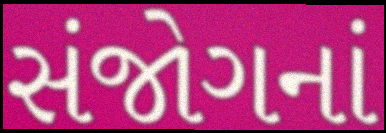
સંજોગનાં